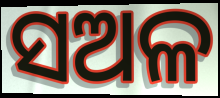
ସଅଳ